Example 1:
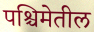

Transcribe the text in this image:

पश्चिमेतील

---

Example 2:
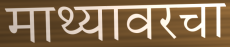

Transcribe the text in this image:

माथ्यावरचा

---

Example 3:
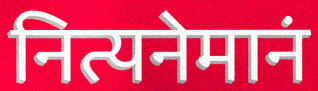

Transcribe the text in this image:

नित्यनेमानं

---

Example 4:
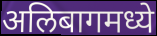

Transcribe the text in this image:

अलिबागमध्ये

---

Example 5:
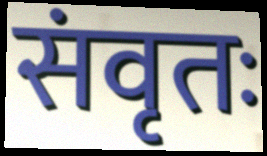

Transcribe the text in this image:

संवृतः